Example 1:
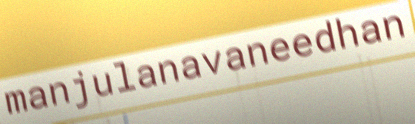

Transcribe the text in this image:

manjulanavaneedhan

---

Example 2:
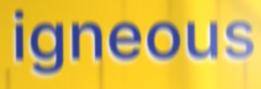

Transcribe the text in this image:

igneous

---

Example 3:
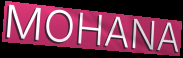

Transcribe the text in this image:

MOHANA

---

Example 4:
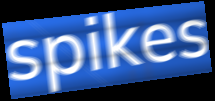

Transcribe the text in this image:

spikes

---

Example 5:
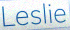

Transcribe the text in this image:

Leslie